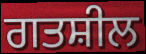
ਗਤਸ਼ੀਲ